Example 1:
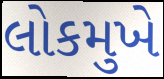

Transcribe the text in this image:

લોકમુખે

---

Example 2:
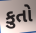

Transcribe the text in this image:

કુતો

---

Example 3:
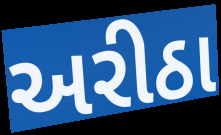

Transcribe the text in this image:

અરીઠા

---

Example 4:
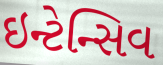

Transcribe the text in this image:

ઇન્ટેન્સિવ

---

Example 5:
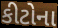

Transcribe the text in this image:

કીટોના